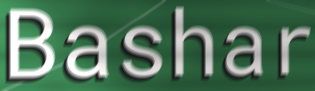
Bashar